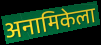
अनामिकेला